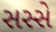
સસ્સે